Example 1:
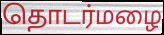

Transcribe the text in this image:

தொடர்மழை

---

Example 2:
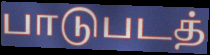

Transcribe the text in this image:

பாடுபடத்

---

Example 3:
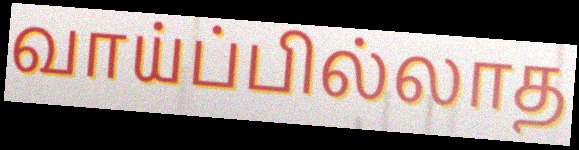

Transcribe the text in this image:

வாய்ப்பில்லாத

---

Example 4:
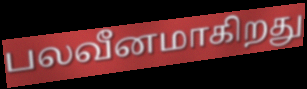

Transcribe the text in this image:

பலவீனமாகிறது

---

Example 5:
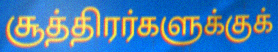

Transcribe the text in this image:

சூத்திரர்களுக்குக்